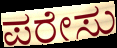
ಪರೇಸು